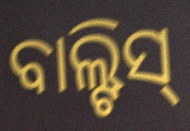
ବାଲ୍ଟିସ୍